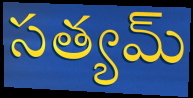
సత్యమ్